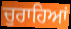
ਚੁਰਾਹਿਆਂ